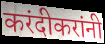
करंदीकरांनी